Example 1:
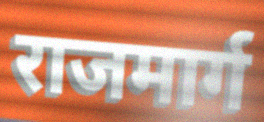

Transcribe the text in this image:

राजमार्ग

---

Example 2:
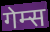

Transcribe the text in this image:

गेम्स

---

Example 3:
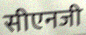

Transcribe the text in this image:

सीएनजी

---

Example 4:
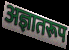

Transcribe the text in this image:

अज्ञातरूप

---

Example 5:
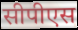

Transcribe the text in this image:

सीपीएस